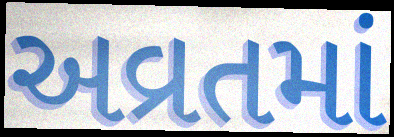
અવ્રતમાં